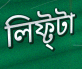
লিফ্ট্টা